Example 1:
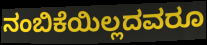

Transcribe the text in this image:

ನಂಬಿಕೆಯಿಲ್ಲದವರೂ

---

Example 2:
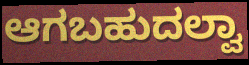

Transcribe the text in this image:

ಆಗಬಹುದಲ್ವಾ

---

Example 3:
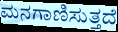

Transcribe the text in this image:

ಮನಗಾಣಿಸುತ್ತದೆ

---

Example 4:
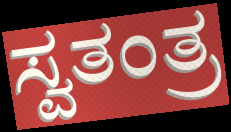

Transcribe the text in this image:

ಸ್ವತಂತ್ರ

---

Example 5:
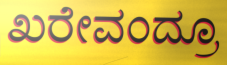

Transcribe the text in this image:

ಖರೇವಂದ್ರೂ